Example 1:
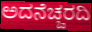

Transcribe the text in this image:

ಅದನೆಚ್ಚರದಿ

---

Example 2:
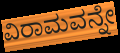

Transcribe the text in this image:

ವಿರಾಮವನ್ನೇ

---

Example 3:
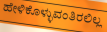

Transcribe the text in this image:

ಹೇಳಿಕೊಳ್ಳುವಂತಿರಲಿಲ್ಲ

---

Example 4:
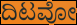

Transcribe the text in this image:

ದಿಟವೋ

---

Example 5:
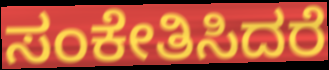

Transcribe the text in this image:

ಸಂಕೇತಿಸಿದರೆ